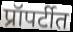
प्रॉपर्टीत